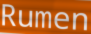
Rumen